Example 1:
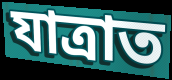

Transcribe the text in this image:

যাত্ৰাত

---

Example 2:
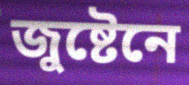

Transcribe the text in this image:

জুষ্টেনে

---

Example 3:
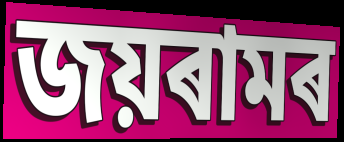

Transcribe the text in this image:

জয়ৰামৰ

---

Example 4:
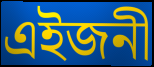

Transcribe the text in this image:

এইজনী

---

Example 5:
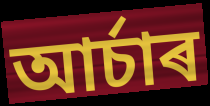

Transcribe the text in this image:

আৰ্চাৰ